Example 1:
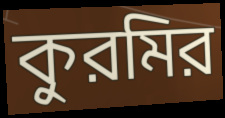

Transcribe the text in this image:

কুরমির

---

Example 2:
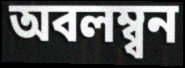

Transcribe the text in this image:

অবলম্ব্বন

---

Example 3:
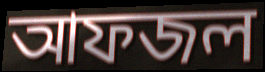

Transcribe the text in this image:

আফজল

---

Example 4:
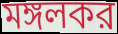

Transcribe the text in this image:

মঙ্গলকর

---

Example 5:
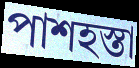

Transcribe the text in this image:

পাশহস্তা